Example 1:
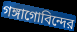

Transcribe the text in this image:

গঙ্গাগোবিন্দের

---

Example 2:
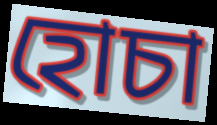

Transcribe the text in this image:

হোচা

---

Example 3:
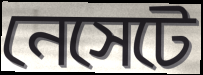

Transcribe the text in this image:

নেসেটে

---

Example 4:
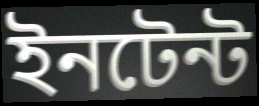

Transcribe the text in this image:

ইনটেন্ট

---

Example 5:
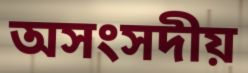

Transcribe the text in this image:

অসংসদীয়